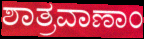
ಶಾತ್ರವಾಣಾಂ